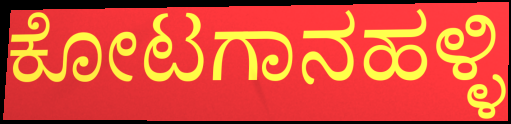
ಕೋಟಗಾನಹಳ್ಳಿ